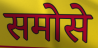
समोसे